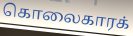
கொலைகாரக்